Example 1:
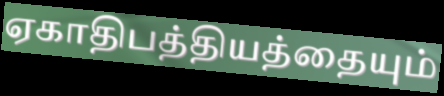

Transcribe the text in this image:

ஏகாதிபத்தியத்தையும்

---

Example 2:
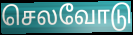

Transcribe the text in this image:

செலவோடு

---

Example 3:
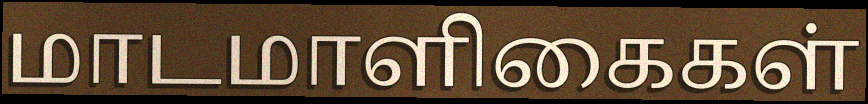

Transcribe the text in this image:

மாடமாளிகைகள்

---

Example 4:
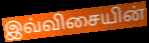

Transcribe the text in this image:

இவ்விசையின்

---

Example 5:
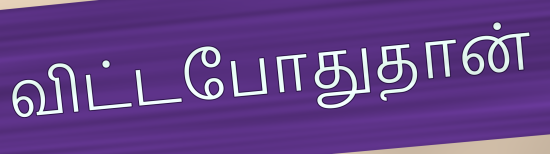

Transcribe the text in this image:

விட்டபோதுதான்